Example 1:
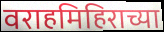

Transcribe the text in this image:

वराहमिहिराच्या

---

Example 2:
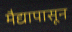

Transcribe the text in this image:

मैद्यापासून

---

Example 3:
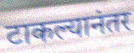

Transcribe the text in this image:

टाकल्यानंतर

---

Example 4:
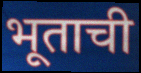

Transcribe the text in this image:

भूताची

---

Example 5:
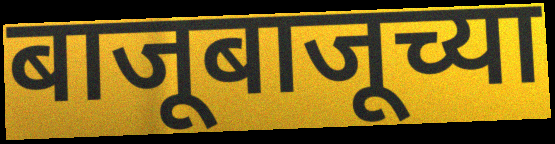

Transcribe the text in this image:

बाजूबाजूच्या